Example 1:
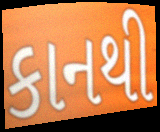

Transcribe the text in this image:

કાનથી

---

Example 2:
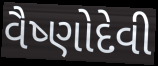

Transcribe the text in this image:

વૈષ્ણોદેવી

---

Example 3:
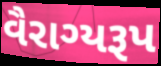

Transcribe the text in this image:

વૈરાગ્યરૂપ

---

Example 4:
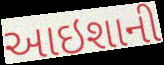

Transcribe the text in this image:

આઇશાની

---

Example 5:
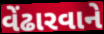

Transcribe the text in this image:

વેંઢારવાને